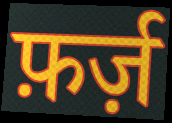
फ़र्ज़